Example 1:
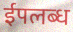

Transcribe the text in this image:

ईपलब्ध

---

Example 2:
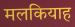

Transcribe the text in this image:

मलकियाह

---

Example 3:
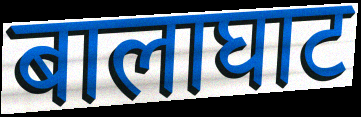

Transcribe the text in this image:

बालाघाट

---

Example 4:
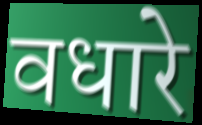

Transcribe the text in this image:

वधारे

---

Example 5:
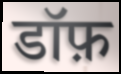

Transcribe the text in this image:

डॉफ़